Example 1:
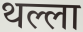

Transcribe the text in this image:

थल्ला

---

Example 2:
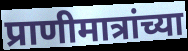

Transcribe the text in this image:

प्राणीमात्रांच्या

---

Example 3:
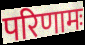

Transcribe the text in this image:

परिणामः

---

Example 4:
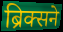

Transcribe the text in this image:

ब्रिक्सने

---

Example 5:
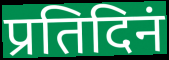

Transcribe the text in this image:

प्रतिदिनं